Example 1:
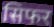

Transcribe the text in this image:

सिफर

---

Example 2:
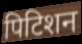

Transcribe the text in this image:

पिटिशन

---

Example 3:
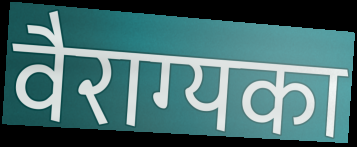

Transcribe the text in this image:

वैराग्यका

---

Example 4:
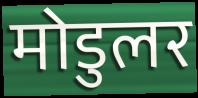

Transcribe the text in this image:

मोडुलर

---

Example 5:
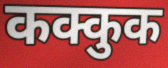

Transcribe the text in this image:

कक्कुक